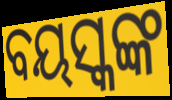
ବୟସ୍କଙ୍କ